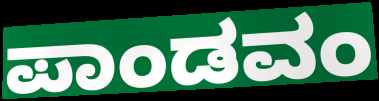
ಪಾಂಡವಂ